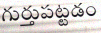
గుర్తుపట్టడం